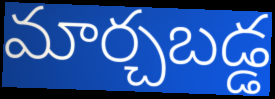
మార్చబడ్డ